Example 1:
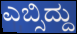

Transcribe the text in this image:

ಎಬ್ಸಿದ್ದು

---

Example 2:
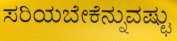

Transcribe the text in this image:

ಸರಿಯಬೇಕೆನ್ನುವಷ್ಟು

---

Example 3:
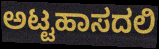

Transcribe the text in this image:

ಅಟ್ಟಹಾಸದಲಿ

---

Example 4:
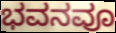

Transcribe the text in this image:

ಭವನವೂ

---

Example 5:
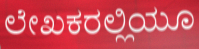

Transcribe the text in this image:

ಲೇಖಕರಲ್ಲಿಯೂ